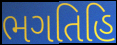
ભગતિહિ